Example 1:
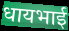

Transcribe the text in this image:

धायभाई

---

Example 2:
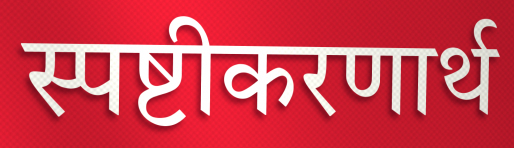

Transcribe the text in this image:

स्पष्टीकरणार्थ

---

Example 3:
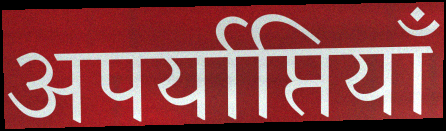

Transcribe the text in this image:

अपर्याप्तियाँ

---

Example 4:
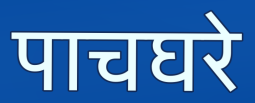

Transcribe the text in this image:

पाचघरे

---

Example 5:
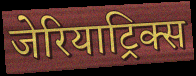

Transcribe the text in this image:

जेरियाट्रिक्स